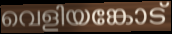
വെളിയങ്കോട്